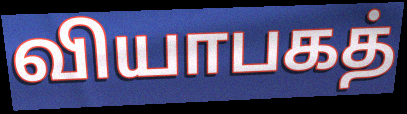
வியாபகத்